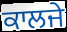
ਕਾਲਜੇ